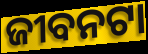
ଜୀବନଟା